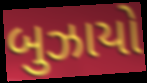
બુઝાયો